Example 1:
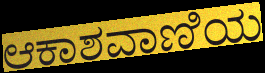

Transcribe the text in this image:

ಆಕಾಶವಾಣಿಯ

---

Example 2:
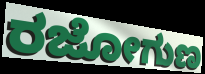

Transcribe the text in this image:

ರಜೋಗುಣ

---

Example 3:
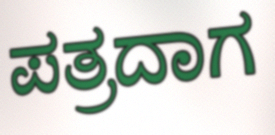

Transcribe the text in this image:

ಪತ್ರದಾಗ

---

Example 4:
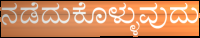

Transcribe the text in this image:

ನಡೆದುಕೊಳ್ಳುವುದು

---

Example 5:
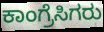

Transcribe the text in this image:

ಕಾಂಗ್ರೆಸಿಗರು